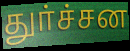
துர்ச்சன